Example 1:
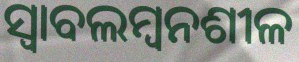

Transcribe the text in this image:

ସ୍ୱାବଲମ୍ୱନଶୀଳ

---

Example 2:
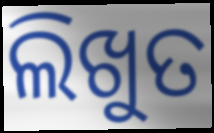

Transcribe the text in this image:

ଲିଖୁତ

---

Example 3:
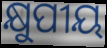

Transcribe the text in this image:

କ୍ଷୁପୀୟ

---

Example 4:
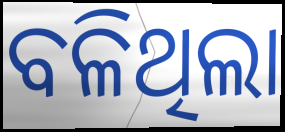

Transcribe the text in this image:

ବଳିଥିଲା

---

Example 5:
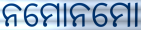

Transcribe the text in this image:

ନମୋନମୋ